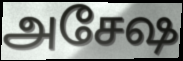
அசேஷ